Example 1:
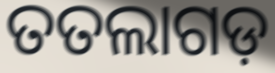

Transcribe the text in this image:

ତତଲାଗଡ଼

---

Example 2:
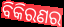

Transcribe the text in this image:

ବିକିରଣର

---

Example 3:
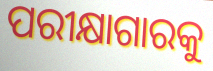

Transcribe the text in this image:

ପରୀକ୍ଷାଗାରକୁ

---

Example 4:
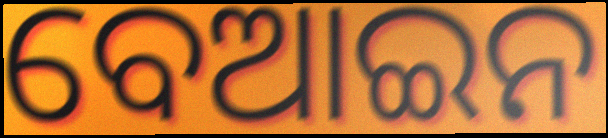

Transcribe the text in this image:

ବେଆଇନ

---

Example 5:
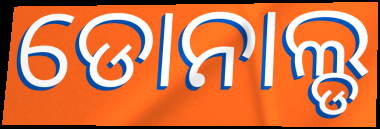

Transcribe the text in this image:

ଡୋନାଲ୍ଡ